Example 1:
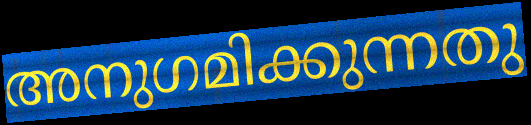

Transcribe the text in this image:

അനുഗമിക്കുന്നതു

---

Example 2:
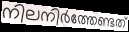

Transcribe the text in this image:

നിലനിർത്തേണ്ടത്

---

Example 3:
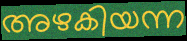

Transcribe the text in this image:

അഴകിയന്ന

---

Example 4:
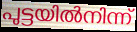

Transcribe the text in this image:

പുട്ടയിൽനിന്ന്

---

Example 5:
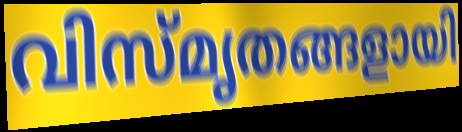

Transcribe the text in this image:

വിസ്മൃതങ്ങളായി